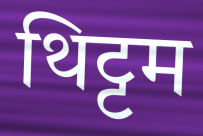
थिट्टम